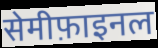
सेमीफ़ाइनल